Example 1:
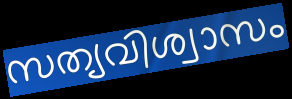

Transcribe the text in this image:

സത്യവിശ്വാസം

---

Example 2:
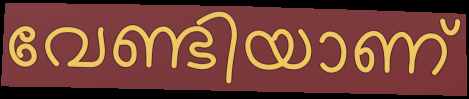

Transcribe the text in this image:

വേണ്ടിയാണ്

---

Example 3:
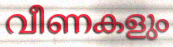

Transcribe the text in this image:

വീണകളും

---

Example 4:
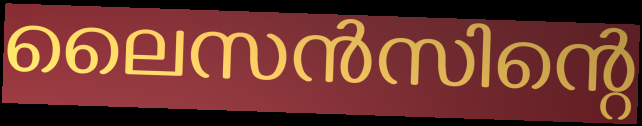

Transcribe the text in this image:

ലൈസൻസിന്റെ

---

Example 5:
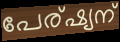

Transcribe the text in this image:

പേര്ഷ്യന്